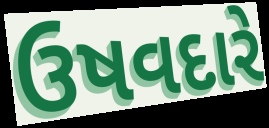
ઉષવદારે